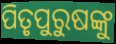
ପିତୃପୁରୁଷଙ୍କୁ